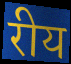
रीय